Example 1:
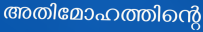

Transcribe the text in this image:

അതിമോഹത്തിന്റെ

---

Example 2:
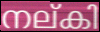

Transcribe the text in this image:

നല്‌കി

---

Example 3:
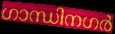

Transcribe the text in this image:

ഗാന്ധിനഗർ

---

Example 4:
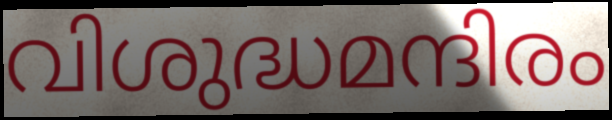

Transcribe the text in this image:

വിശുദ്ധമന്ദിരം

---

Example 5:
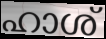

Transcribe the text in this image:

ഹാശ്